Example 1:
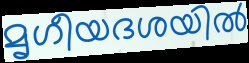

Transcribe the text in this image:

മൃഗീയദശയിൽ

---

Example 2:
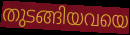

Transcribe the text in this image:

തുടങ്ങിയവയെ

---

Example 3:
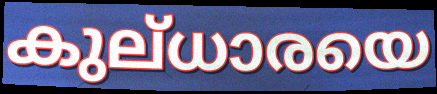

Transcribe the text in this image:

കുല്ധാരയെ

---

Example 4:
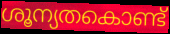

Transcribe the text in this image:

ശൂന്യതകൊണ്ട്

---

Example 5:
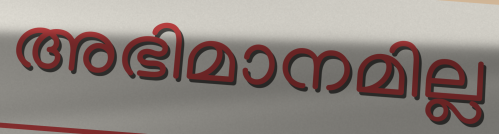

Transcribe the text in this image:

അഭിമാനമില്ല